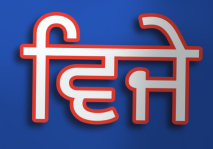
ਵਿਜੇ